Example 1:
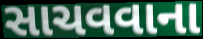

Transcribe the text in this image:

સાચવવાના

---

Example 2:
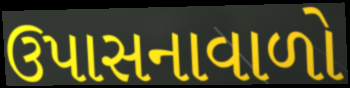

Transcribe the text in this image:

ઉપાસનાવાળો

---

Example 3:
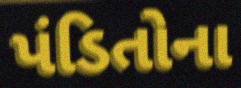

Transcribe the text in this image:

પંડિતોના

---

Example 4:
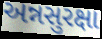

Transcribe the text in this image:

અન્નસુરક્ષા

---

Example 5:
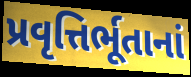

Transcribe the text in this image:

પ્રવૃત્તિર્ભૂતાનાં